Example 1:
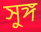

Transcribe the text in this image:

সুঙ্গ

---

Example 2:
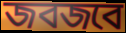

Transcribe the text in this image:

জবজবে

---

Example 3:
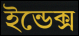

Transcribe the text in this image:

ইন্ডেক্স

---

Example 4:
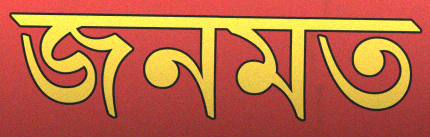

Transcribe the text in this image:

জনমত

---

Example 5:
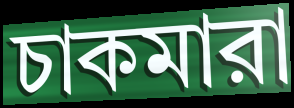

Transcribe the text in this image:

চাকমারা